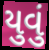
યુવું